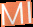
MI